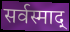
सर्वस्माद्